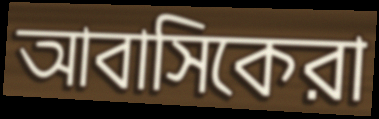
আবাসিকেরা